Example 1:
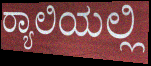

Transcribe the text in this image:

ರ‍್ಯಾಲಿಯಲ್ಲಿ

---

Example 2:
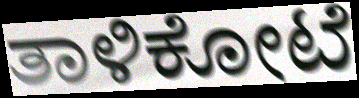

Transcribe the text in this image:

ತಾಳಿಕೋಟೆ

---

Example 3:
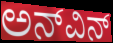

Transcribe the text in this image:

ಅನ್‌ವಿನ್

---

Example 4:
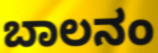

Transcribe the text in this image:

ಬಾಲನಂ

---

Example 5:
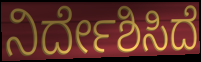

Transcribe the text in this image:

ನಿರ್ದೇಶಿಸಿದೆ